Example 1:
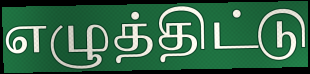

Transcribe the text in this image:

எழுத்திட்டு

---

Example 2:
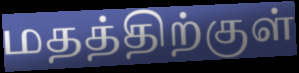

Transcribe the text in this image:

மதத்திற்குள்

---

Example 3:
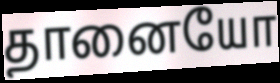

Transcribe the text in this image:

தானையோ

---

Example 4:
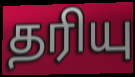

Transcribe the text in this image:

தரியு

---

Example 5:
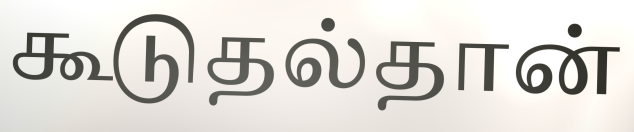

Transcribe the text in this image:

கூடுதல்தான்